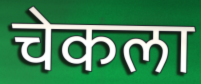
चेकला